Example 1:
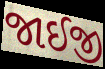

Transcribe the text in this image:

જાઈજી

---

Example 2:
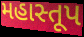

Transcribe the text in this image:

મહાસ્તૂપ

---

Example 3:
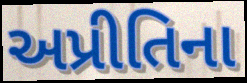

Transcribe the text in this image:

અપ્રીતિના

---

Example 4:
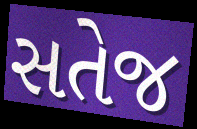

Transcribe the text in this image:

સતેજ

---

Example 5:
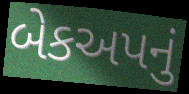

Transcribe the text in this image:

બેકઅપનું